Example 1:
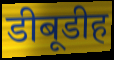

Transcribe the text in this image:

डीबूडीह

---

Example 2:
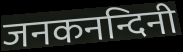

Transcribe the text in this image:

जनकनन्दिनी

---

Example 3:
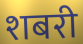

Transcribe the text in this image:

शबरी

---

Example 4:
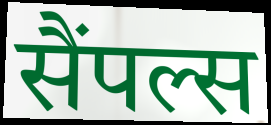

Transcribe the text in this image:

सैंपल्स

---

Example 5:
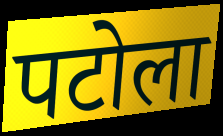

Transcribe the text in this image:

पटोला